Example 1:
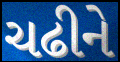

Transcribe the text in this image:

ચઢીને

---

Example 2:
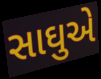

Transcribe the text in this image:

સાઘુએ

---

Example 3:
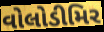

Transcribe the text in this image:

વોલોડીમિર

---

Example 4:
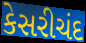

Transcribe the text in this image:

કેસરીચંદ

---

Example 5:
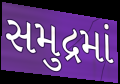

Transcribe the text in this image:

સમુદ્રમાં